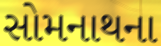
સોમનાથના